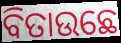
ବିତାଉଛେ